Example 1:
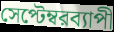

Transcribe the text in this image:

সেপ্টেম্বরব্যাপী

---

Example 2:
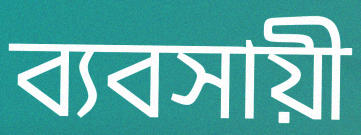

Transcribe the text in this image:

ব্যবসায়ী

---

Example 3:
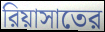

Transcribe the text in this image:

রিয়াসাতের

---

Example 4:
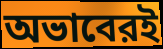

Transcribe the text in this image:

অভাবেরই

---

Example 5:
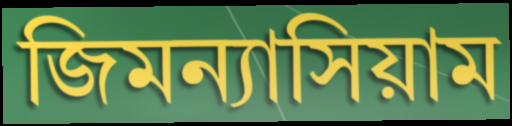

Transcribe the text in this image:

জিমন্যাসিয়াম